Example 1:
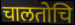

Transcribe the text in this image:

चालतोचि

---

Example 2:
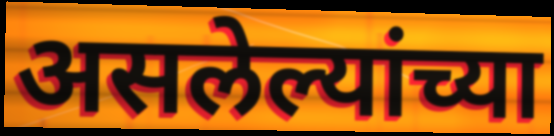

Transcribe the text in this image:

असलेल्यांच्या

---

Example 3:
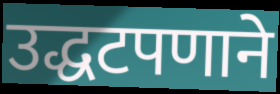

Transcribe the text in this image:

उद्धटपणाने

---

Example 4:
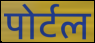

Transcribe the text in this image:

पोर्टल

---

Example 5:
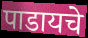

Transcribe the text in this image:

पाडायचे